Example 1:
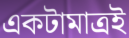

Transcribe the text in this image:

একটামাত্রই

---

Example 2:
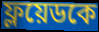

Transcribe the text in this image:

ফ্লয়েডকে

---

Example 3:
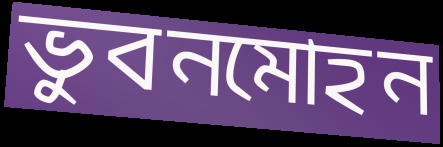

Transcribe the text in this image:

ভুবনমোহন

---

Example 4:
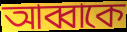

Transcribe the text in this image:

আব্বাকে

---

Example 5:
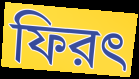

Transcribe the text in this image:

ফিরৎ